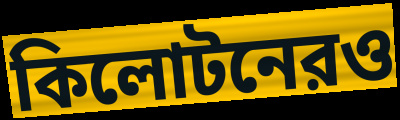
কিলোটনেরও